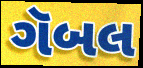
ગૅબલ